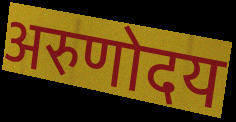
अरुणोदय